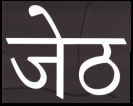
जेठ